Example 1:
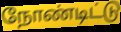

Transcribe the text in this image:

நோண்டிட்டு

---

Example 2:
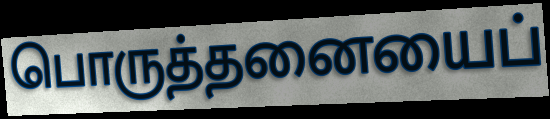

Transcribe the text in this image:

பொருத்தனையைப்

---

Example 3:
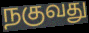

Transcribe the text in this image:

நகுவது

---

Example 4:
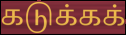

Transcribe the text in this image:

கடுக்கக்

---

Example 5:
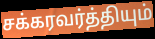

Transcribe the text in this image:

சக்கரவர்த்தியும்